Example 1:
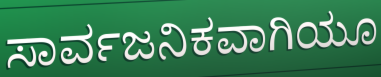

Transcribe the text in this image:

ಸಾರ್ವಜನಿಕವಾಗಿಯೂ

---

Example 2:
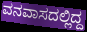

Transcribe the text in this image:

ವನವಾಸದಲ್ಲಿದ್ದ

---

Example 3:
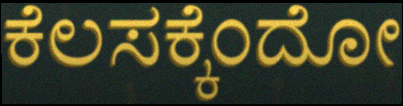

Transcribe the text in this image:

ಕೆಲಸಕ್ಕೆಂದೋ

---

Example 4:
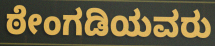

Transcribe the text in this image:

ಠೇಂಗಡಿಯವರು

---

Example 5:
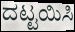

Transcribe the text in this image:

ದಟ್ಟಯಿಸಿ